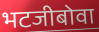
भटजीबोवा